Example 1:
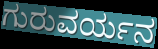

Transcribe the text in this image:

ಗುರುವರ್ಯನ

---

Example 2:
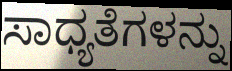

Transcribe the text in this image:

ಸಾಧ್ಯತೆಗಳನ್ನು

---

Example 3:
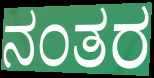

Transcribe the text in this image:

ನಂತರ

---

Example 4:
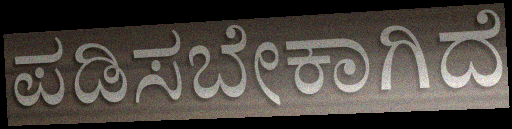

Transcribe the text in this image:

ಪಡಿಸಬೇಕಾಗಿದೆ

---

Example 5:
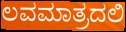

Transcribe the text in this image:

ಲವಮಾತ್ರದಲಿ